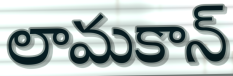
లామకాన్